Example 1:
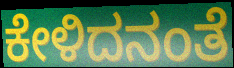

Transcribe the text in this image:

ಕೇಳಿದನಂತೆ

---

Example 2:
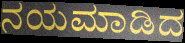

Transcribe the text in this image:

ನಯಮಾಡಿದ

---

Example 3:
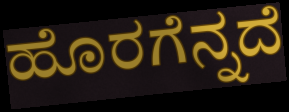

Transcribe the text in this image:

ಹೊರಗೆನ್ನದೆ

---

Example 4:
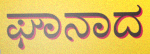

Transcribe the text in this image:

ಘಾನಾದ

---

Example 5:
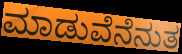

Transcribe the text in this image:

ಮಾಡುವೆನೆನುತ